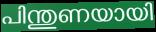
പിന്തുണയായി